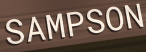
SAMPSON